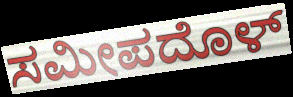
ಸಮೀಪದೊಳ್